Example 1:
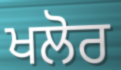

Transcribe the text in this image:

ਖਲੋਰ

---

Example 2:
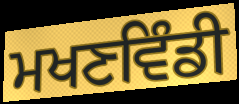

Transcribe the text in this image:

ਮਖਣਵਿੰਡੀ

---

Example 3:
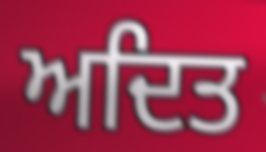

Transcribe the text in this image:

ਅਦਿਤ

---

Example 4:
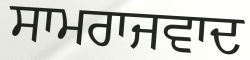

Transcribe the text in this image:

ਸਾਮਰਾਜਵਾਦ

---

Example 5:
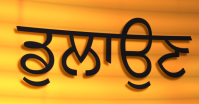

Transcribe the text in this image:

ਡੁਲਾਉਣ